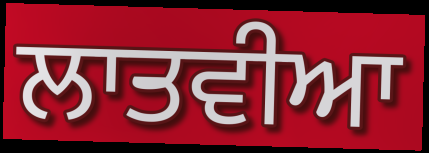
ਲਾਤਵੀਆ